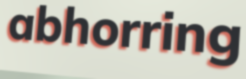
abhorring